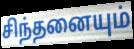
சிந்தனையும்